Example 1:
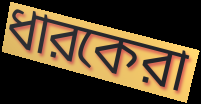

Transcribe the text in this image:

ধারকেরা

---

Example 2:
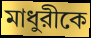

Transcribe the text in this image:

মাধুরীকে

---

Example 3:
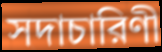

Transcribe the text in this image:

সদাচারিণী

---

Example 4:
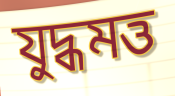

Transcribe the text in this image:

যুদ্ধমত্ত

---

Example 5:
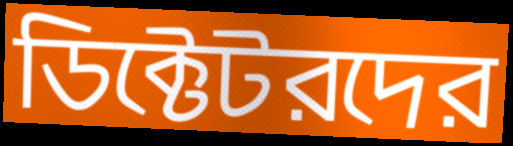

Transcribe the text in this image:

ডিক্টেটরদের